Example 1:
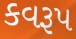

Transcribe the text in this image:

કવરૂપ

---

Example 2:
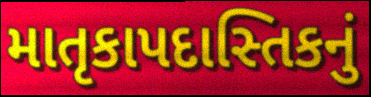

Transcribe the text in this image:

માતૃકાપદાસ્તિકનું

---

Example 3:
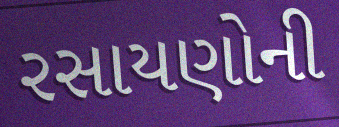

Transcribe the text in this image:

રસાયણોની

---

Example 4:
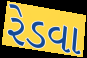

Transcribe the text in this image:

રેડવા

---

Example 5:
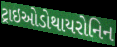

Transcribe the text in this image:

ટ્રાઇઓડોથાયરોનિન